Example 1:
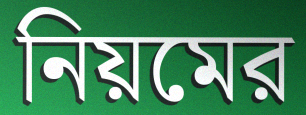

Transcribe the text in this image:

নিয়মের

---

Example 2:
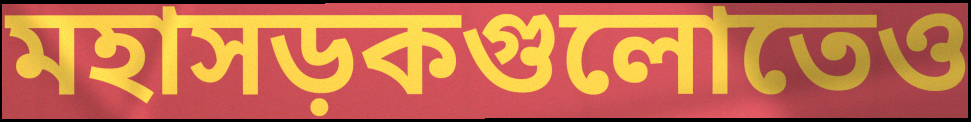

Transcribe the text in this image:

মহাসড়কগুলোতেও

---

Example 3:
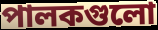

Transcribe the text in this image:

পালকগুলো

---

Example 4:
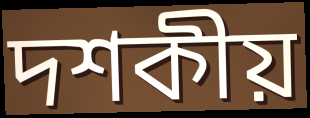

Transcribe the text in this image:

দশকীয়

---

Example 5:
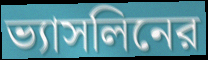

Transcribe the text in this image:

ভ্যাসলিনের